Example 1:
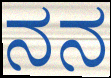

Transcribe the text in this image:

ನನ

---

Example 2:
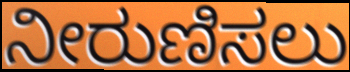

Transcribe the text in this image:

ನೀರುಣಿಸಲು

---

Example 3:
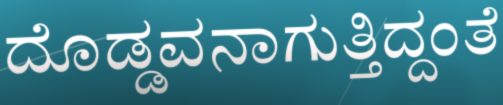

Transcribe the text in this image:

ದೊಡ್ಡವನಾಗುತ್ತಿದ್ದಂತೆ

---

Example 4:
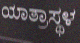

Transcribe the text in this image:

ಯಾತ್ರಾಸ್ಥಳ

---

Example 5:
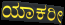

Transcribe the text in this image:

ಯಾಕರೀ